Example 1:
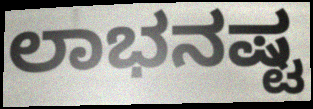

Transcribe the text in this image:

ಲಾಭನಷ್ಟ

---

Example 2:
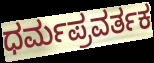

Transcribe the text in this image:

ಧರ್ಮಪ್ರವರ್ತಕ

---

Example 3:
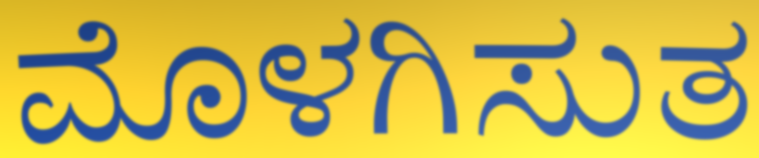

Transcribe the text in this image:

ಮೊಳಗಿಸುತ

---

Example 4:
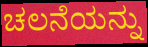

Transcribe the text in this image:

ಚಲನೆಯನ್ನು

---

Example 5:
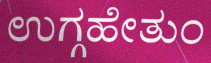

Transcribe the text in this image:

ಉಗ್ಗಹೇತುಂ